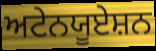
ਅਟੇਨਯੂਏਸ਼ਨ